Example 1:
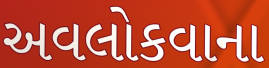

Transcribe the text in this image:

અવલોકવાના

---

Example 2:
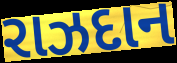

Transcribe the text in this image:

રાઝદાન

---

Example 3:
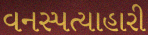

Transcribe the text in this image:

વનસ્પત્યાહારી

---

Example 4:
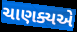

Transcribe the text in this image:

ચાણક્યએ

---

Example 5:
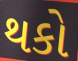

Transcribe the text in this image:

થકો